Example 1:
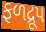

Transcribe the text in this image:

ફળદ્રૂપ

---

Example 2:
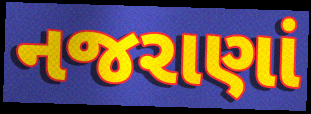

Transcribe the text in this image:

નજરાણાં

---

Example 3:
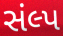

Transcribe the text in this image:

સંલ્પ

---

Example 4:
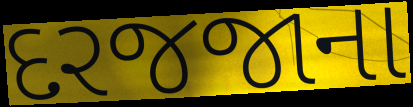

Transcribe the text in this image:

દરજજાના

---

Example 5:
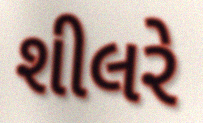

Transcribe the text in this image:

શીલરે